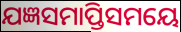
ଯଜ୍ଞସମାପ୍ତିସମୟେ